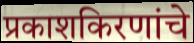
प्रकाशकिरणांचे